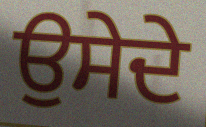
ਉਸੇਦੇ